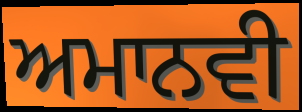
ਅਮਾਨਵੀ